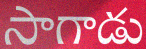
సాగాడు